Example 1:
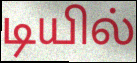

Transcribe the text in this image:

டியில்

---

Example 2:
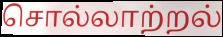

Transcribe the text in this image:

சொல்லாற்றல்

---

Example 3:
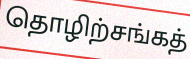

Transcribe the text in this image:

தொழிற்சங்கத்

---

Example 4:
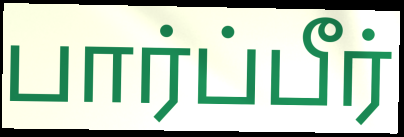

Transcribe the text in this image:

பார்ப்பீர்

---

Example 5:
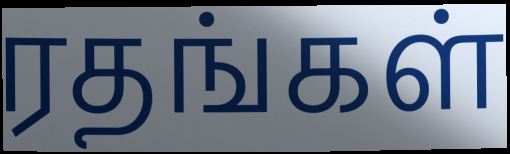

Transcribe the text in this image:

ரதங்கள்